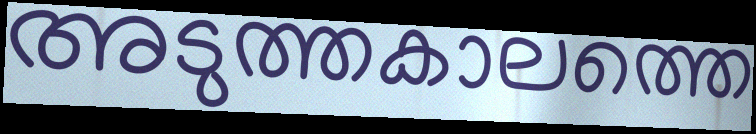
അടുത്തകാലത്തെ